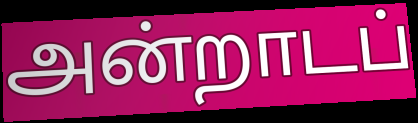
அன்றாடப்